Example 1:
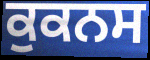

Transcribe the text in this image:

ਕੁਕਨਸ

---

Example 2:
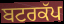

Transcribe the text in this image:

ਬਟਰਕੱਪ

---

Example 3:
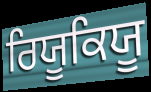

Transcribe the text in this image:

ਰਿਯੂਕਿਯੂ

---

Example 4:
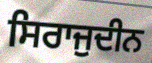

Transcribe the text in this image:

ਸਿਰਾਜੁਦੀਨ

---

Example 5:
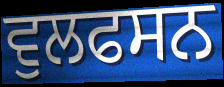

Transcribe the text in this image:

ਵੁਲਫਸਨ